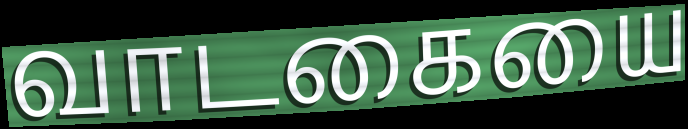
வாடகையை